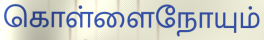
கொள்ளைநோயும்